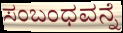
ಸಂಬಂಧವನ್ನೆ